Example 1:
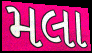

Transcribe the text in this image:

મલા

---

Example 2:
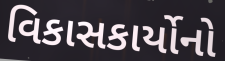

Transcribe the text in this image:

વિકાસકાર્યોનો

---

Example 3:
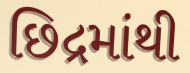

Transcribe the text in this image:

છિદ્રમાંથી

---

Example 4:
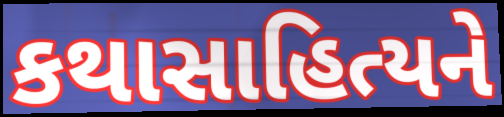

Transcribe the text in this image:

કથાસાહિત્યને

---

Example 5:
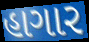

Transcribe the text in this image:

હાગાર